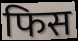
फिस